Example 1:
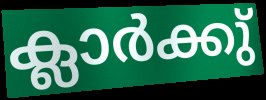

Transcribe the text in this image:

ക്ലാർക്കു്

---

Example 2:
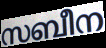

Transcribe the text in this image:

സബീന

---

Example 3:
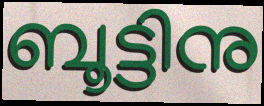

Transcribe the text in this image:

ബൂട്ടിനു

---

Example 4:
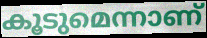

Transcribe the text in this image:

കൂടുമെന്നാണ്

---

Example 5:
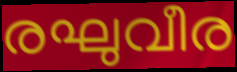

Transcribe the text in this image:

രഘുവീര